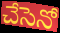
చేసెనో